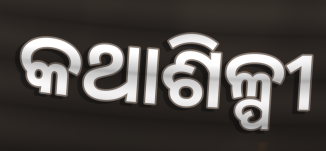
କଥାଶିଳ୍ପୀ